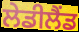
ਲੇਡੀਲੈਂਡ